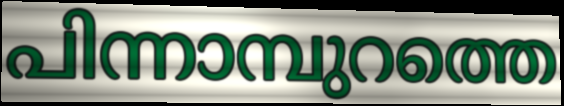
പിന്നാമ്പുറത്തെ